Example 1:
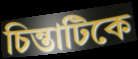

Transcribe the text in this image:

চিন্তাটিকে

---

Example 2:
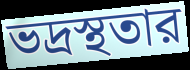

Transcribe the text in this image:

ভদ্রস্থতার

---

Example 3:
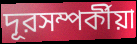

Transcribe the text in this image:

দূরসম্পর্কীয়া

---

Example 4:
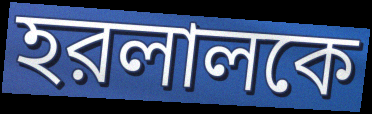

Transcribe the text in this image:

হরলালকে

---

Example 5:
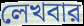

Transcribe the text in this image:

লেখবার